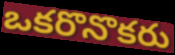
ఒకరొనొకరు